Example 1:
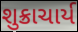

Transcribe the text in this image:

શુક્રાચાર્ય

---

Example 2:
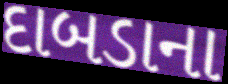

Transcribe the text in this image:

દાબડાના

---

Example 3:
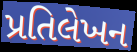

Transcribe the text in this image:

પ્રતિલેખન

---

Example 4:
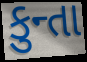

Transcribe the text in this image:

કુન્તા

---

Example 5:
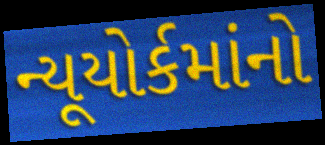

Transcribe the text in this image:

ન્યૂયોર્કમાંનો